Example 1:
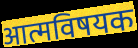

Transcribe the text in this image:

आत्मविषयक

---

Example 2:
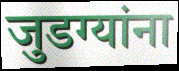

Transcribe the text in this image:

जुडग्यांना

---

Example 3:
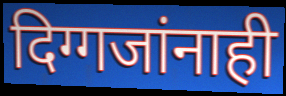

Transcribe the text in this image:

दिग्गजांनाही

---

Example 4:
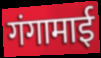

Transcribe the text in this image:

गंगामाई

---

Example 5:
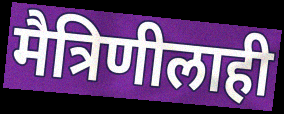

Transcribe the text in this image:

मैत्रिणीलाही